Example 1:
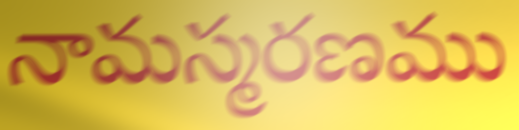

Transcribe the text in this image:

నామస్మరణము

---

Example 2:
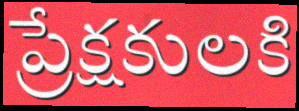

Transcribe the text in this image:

ప్రేక్షకులకి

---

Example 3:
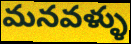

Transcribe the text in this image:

మనవళ్ళు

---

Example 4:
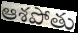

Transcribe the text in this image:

ఆశపోతు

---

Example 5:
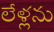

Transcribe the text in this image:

లేళ్లను